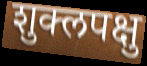
शुक्लपक्षु